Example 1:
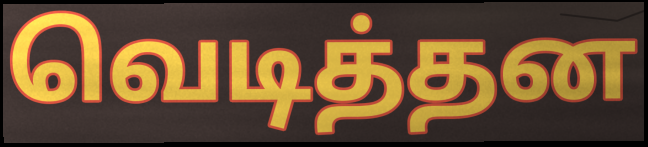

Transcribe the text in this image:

வெடித்தன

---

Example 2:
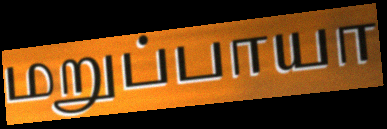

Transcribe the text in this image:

மறுப்பாயா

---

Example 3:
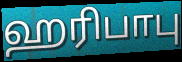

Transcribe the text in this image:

ஹரிபாபு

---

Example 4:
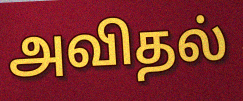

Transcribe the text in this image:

அவிதல்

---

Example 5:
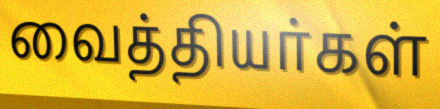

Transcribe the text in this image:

வைத்தியர்கள்